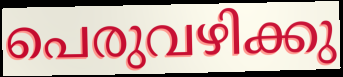
പെരുവഴിക്കു